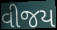
વીજય